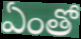
ఏంతో